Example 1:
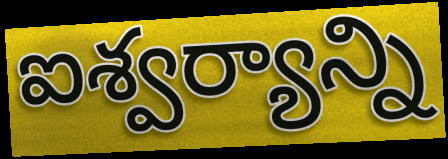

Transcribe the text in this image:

ఐశ్వర్యాన్ని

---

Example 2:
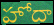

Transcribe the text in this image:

హోదా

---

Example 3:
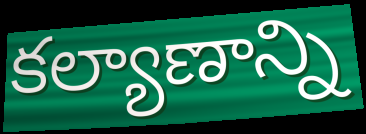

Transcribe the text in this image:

కల్యాణాన్ని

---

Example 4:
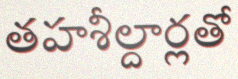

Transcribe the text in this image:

తహశీల్దార్లతో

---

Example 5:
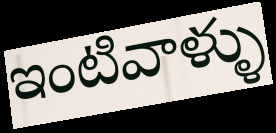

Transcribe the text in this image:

ఇంటివాళ్ళు